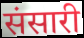
संसारी